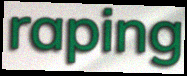
raping